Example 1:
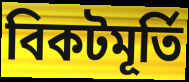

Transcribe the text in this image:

বিকটমূর্তি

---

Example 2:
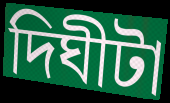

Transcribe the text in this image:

দিঘীটা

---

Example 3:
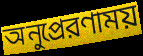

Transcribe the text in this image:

অনুপ্রেরণাময়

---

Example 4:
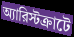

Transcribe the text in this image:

অ্যারিস্টক্রাটে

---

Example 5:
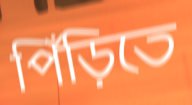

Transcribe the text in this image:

পিঁড়িতে